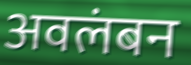
अवलंबन